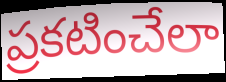
ప్రకటించేలా